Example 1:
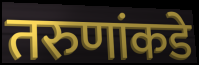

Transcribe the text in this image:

तरुणांकडे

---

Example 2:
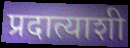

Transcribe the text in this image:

प्रदात्याशी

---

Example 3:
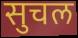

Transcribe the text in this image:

सुचल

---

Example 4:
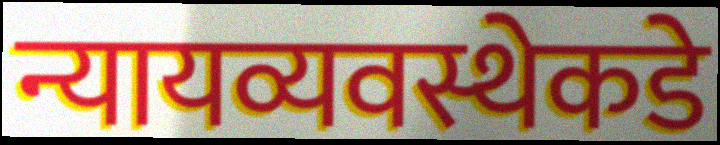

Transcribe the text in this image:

न्यायव्यवस्थेकडे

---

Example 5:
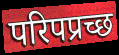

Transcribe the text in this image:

परिपप्रच्छ